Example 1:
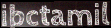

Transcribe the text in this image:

ibctamil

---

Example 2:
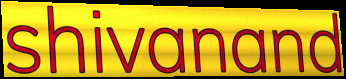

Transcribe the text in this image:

shivanand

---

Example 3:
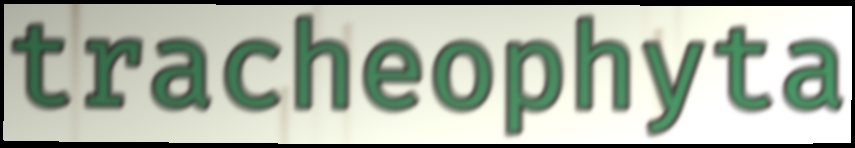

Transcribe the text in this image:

tracheophyta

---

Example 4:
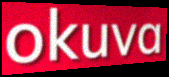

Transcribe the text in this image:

okuva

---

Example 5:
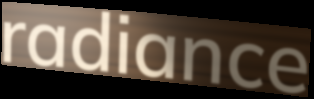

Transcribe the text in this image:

radiance